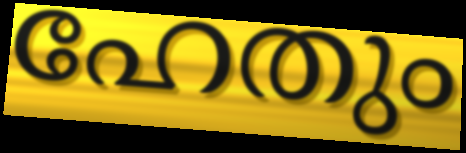
ഹേതും